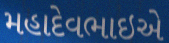
મહાદેવભાઇએ